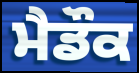
ਮੈਡੌਕ